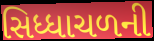
સિધ્ધાચળની